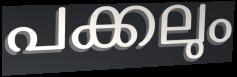
പക്കലും